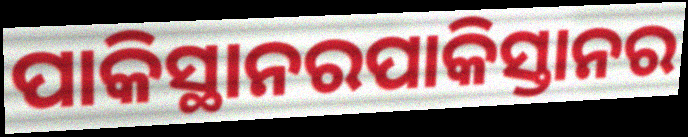
ପାକିସ୍ଥାନରପାକିସ୍ତାନର